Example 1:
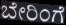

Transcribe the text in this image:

ಬೇರಿಂಗೆ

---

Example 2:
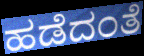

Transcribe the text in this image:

ಹಡೆದಂತೆ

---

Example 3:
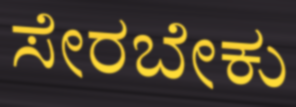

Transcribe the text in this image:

ಸೇರಬೇಕು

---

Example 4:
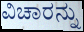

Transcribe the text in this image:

ವಿಚಾರನ್ನು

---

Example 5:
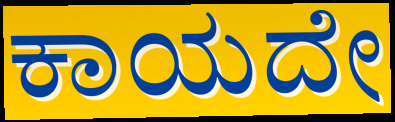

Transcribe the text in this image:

ಕಾಯದೇ